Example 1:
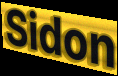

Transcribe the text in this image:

Sidon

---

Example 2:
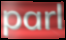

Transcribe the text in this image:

parl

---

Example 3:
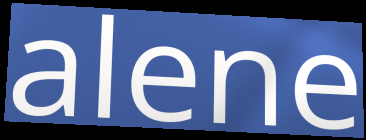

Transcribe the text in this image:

alene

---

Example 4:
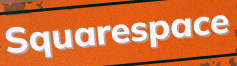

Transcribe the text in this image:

Squarespace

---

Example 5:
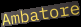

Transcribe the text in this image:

Ambatore